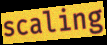
scaling